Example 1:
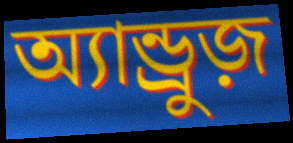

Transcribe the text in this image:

অ্যান্ড্রুজ়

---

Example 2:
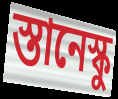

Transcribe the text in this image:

স্তানেস্কু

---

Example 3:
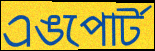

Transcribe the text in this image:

এঙপোর্ট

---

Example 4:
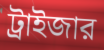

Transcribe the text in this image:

ট্রাইজার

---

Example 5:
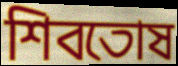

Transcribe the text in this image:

শিবতোষ